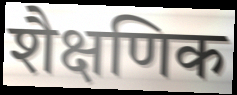
शैक्षणिक